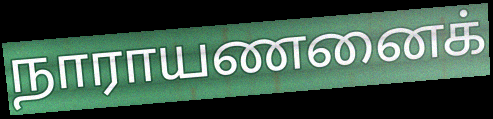
நாராயணனைக்